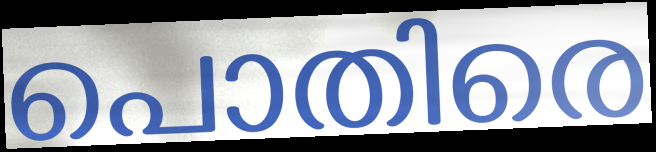
പൊതിരെ